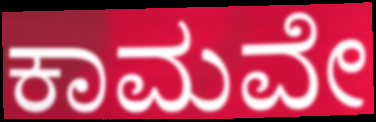
ಕಾಮವೇ